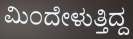
ಮಿಂದೇಳುತ್ತಿದ್ದ